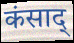
कंसाद्